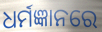
ଧର୍ମଜ୍ଞାନରେ